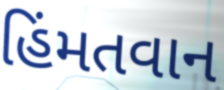
હિંમતવાન